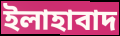
ইলাহাবাদ